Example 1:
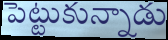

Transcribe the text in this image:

పెట్టుకున్నాడు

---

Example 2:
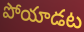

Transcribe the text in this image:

పోయాడట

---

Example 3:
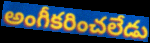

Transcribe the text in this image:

అంగీకరించలేడు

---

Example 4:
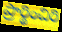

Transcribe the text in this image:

ప్రార్థించిరి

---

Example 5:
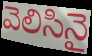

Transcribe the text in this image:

వెలిసినై